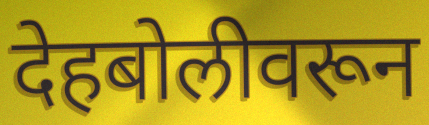
देहबोलीवरून